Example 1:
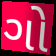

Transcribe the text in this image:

ગો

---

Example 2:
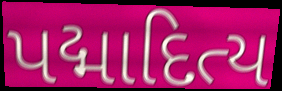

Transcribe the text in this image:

પદ્માદિત્ય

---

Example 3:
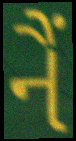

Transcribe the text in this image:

નૈં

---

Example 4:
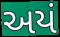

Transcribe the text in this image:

અયં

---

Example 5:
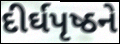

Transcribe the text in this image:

દીર્ઘપૃષ્ઠને